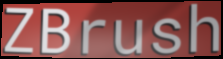
ZBrush